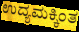
ಉದ್ಯಮಕ್ಕಿಂತ